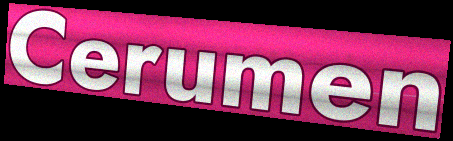
Cerumen